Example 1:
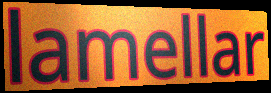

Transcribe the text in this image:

lamellar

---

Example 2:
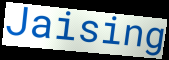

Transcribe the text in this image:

Jaising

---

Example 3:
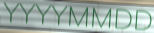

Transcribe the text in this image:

YYYYMMDD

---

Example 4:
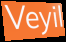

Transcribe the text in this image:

Veyil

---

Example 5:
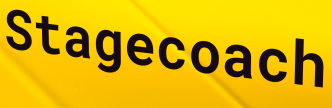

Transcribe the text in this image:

Stagecoach